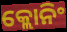
କ୍ଲୋନିଂ